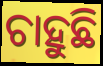
ଚାହୁଛି